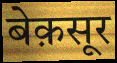
बेक़सूर